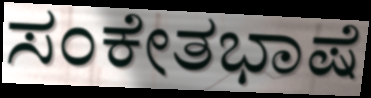
ಸಂಕೇತಭಾಷೆ